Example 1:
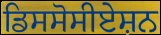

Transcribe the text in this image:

ਡਿਸਸੋਸੀਏਸ਼ਨ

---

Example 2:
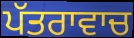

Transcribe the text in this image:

ਪੱਤਰਾਵਾਚ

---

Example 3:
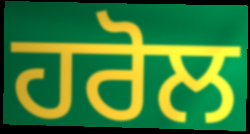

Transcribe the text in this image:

ਹਰੋਲ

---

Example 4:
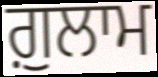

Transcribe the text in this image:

ਗ਼ੁਲਾਮ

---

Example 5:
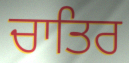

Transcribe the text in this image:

ਚਾਤਿਰ